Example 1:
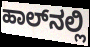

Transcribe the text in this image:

ಹಾಲ್‌ನಲ್ಲಿ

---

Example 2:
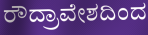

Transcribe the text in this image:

ರೌದ್ರಾವೇಶದಿಂದ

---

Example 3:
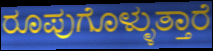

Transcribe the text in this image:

ರೂಪುಗೊಳ್ಳುತ್ತಾರೆ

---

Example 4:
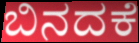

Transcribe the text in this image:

ಬಿನದಕೆ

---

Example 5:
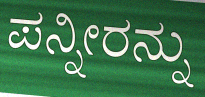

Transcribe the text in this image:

ಪನ್ನೀರನ್ನು